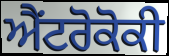
ਐਂਟਰੋਕੋਕੀ